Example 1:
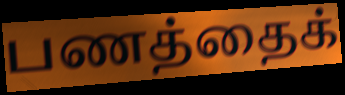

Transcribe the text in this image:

பணத்தைக்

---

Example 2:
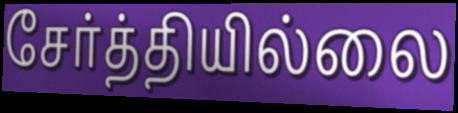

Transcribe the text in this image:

சேர்த்தியில்லை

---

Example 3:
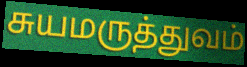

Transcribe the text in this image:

சுயமருத்துவம்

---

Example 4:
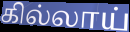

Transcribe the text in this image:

கில்லாய்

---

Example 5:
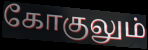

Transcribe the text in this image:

கோகுலும்